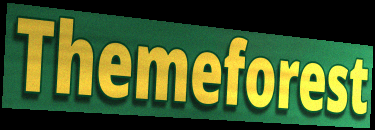
Themeforest